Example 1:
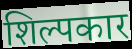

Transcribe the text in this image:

शिल्पकार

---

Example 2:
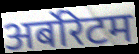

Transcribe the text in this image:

अर्बोरेटम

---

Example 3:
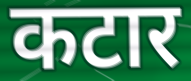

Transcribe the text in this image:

कटार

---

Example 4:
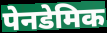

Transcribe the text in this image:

पेनडेमिक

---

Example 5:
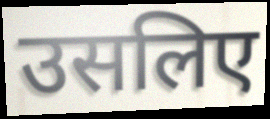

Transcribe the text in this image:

उसलिए